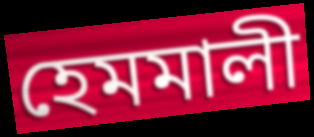
হেমমালী